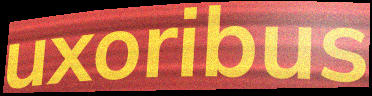
uxoribus